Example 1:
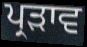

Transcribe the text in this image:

ਪ੍ਰੜਾਵ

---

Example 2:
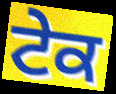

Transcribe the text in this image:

ਟੇਕ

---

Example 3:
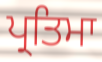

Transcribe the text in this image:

ਪ੍ਰਤਿਮਾ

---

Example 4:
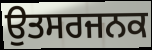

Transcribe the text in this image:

ਉਤਸਰਜਨਕ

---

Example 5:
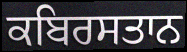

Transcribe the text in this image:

ਕਬਿਰਸਤਾਨ